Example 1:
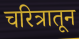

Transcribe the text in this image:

चरित्रातून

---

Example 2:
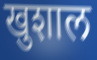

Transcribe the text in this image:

खुशाल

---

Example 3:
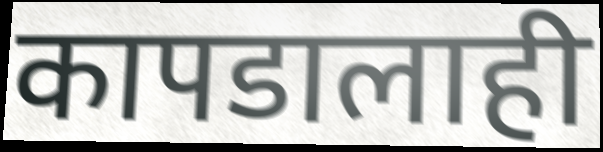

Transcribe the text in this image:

कापडालाही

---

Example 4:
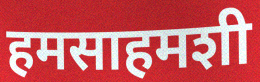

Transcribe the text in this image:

हमसाहमशी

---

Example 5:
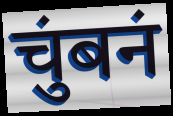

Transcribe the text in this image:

चुंबनं